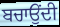
ਬਚਾਉਂਦੀ